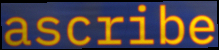
ascribe